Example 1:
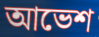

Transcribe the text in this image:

আভেশ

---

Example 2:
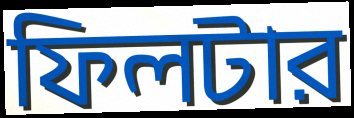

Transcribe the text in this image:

ফিলটার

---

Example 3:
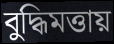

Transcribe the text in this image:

বুদ্ধিমত্তায়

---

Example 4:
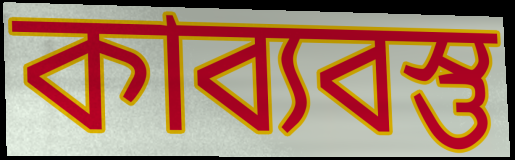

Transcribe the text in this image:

কাব্যবস্তু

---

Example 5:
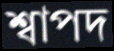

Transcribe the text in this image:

শ্বাপদ